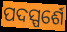
ପଦସ୍ପର୍ଶେ